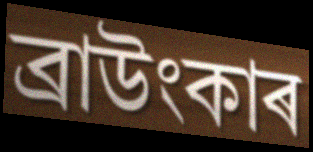
ব্ৰাউংকাৰ